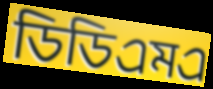
ডিডিএমএ